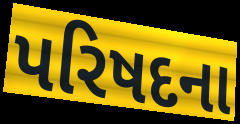
પરિષદના